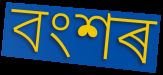
বংশৰ